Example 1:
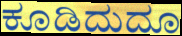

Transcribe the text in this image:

ಕೂಡಿದುದೂ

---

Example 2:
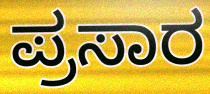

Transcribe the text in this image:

ಪ್ರಸಾರ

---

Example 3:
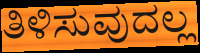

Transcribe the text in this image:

ತಿಳಿಸುವುದಲ್ಲ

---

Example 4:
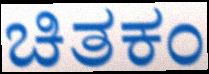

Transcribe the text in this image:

ಚಿತಕಂ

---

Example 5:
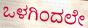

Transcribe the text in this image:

ಒಳಗಿಂದಲೇ